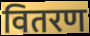
वितरण